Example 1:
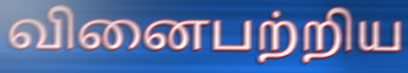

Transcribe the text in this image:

வினைபற்றிய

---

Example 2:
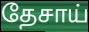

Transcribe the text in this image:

தேசாய்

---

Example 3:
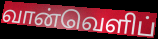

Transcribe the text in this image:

வான்வெளிப்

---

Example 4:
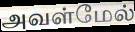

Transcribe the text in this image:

அவள்மேல்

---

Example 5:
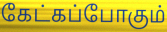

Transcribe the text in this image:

கேட்கப்போகும்